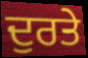
ਦੁਰਤੇ